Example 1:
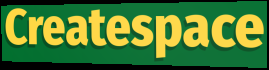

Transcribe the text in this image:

Createspace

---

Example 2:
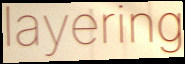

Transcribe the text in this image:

layering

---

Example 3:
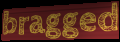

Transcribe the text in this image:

bragged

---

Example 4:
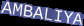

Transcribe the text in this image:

AMBALIYA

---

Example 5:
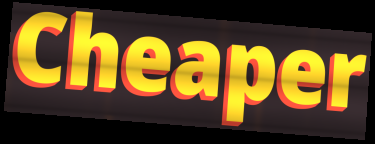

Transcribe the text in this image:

Cheaper